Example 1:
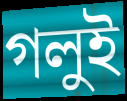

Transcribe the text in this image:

গলুই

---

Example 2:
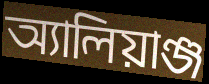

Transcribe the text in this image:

অ্যালিয়াঞ্জ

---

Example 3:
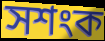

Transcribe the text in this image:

সশংক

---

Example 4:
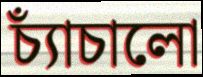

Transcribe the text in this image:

চ্যাঁচালো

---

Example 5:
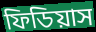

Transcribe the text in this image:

ফিডিয়াস